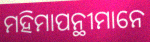
ମହିମାପନ୍ଥୀମାନେ